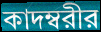
কাদম্বরীর